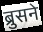
ब्रुसने